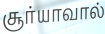
சூர்யாவால்